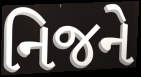
નિજને